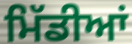
ਮਿੱਡੀਆਂ